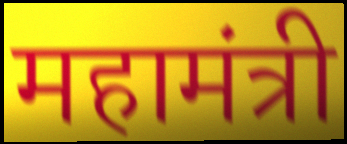
महामंत्री